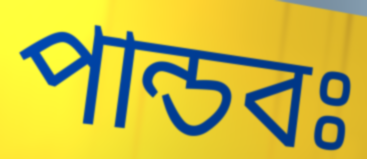
পান্ডবঃ